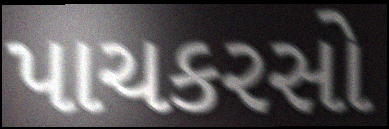
પાચકરસો